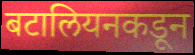
बटालियनकडून